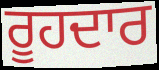
ਰੂਹਦਾਰ